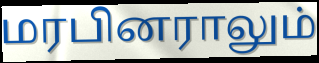
மரபினராலும்